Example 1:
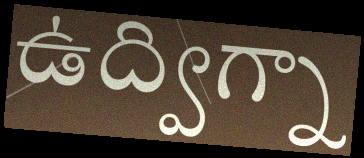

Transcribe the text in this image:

ఉద్విగ్నా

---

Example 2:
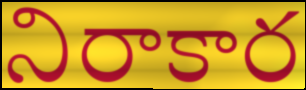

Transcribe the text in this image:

నిరాకార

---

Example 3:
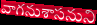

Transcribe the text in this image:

వాగనుశాసనుని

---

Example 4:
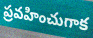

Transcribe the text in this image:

ప్రవహించుగాక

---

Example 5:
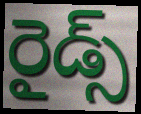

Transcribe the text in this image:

రైడ్స్